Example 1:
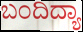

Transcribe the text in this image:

ಬಂದಿದ್ಯಾ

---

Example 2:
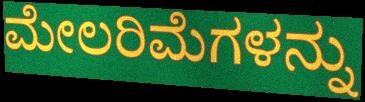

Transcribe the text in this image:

ಮೇಲರಿಮೆಗಳನ್ನು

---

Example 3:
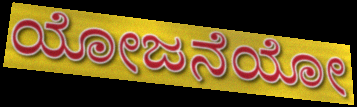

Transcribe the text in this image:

ಯೋಜನೆಯೋ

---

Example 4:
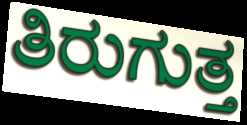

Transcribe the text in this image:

ತಿರುಗುತ್ತ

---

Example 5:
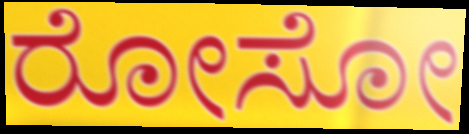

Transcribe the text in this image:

ರೋಸೋ